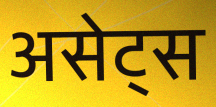
असेट्स